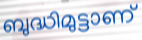
ബുദ്ധിമുട്ടാണ്